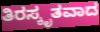
ತಿರಸ್ಕೃತವಾದ